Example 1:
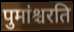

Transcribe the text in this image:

पुमांश्चरति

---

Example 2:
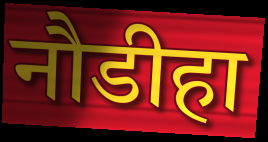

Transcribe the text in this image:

नौडीहा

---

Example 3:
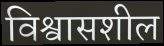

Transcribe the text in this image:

विश्वासशील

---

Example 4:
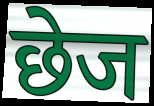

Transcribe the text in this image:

छेज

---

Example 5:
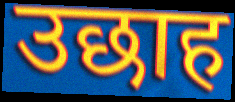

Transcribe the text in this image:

उछाह